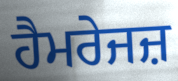
ਹੈਮਰੇਜਜ਼